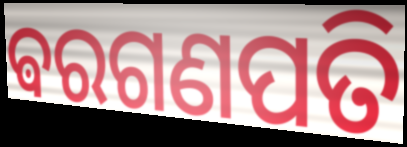
ଵରଗଣପତି